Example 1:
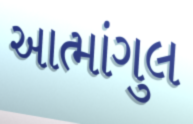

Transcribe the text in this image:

આત્માંગુલ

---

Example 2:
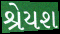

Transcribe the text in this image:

શ્રેયશ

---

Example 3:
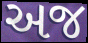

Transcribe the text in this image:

અજ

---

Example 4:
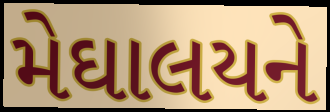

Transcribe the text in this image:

મેઘાલયને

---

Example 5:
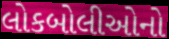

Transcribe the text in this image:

લોકબોલીઓનો